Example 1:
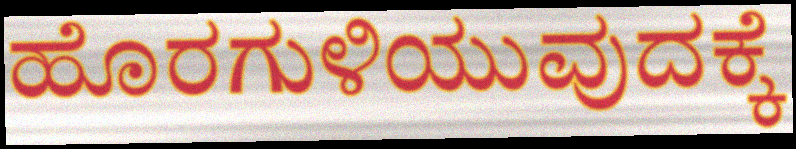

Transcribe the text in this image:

ಹೊರಗುಳಿಯುವುದಕ್ಕೆ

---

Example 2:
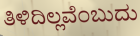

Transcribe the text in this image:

ತಿಳಿದಿಲ್ಲವೆಂಬುದು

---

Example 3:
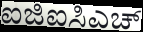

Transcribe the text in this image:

ಐಜಿಐಸಿಎಚ್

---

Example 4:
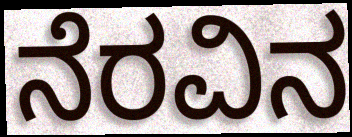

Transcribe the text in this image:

ನೆರವಿನ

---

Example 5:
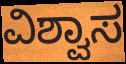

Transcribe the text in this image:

ವಿಶ್ವಾಸ